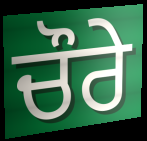
ਚੌਰੇ